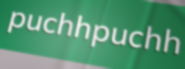
puchhpuchh